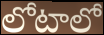
లోటాలో